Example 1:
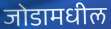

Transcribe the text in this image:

जोडामधील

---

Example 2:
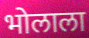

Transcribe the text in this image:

भोलाला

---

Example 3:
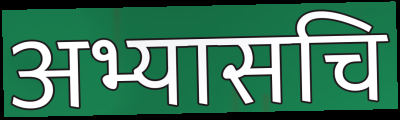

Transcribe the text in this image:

अभ्यासचि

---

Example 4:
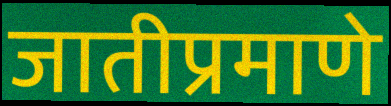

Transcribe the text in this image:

जातीप्रमाणे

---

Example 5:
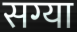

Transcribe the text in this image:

सग्या